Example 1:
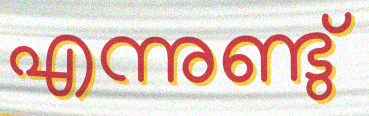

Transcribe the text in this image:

എന്നുണ്ടു്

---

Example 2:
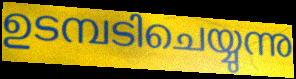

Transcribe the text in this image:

ഉടമ്പടിചെയ്യുന്നു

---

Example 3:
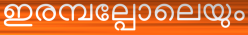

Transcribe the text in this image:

ഇരമ്പല്പോലെയും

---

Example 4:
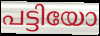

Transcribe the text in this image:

പട്ടിയോ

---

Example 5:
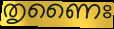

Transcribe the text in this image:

തൃണൈഃ